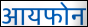
आयफोन